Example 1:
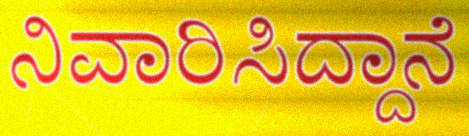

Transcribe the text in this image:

ನಿವಾರಿಸಿದ್ದಾನೆ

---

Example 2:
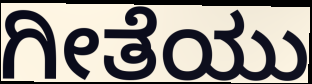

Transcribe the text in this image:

ಗೀತೆಯು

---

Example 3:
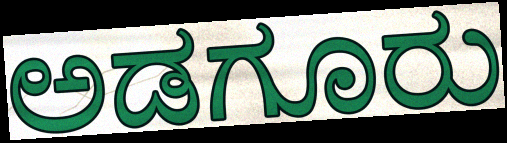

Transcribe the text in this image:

ಅಡಗೂರು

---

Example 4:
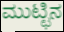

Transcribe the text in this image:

ಮುಟ್ಟಿನ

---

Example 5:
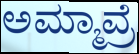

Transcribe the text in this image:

ಅಮ್ಮಾವ್ರೆ